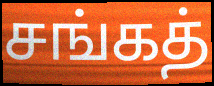
சங்கத்